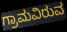
ಗ್ರಾಮವಿರುವ